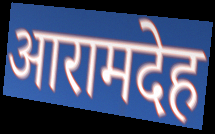
आरामदेह